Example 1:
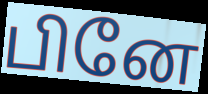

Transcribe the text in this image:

பினே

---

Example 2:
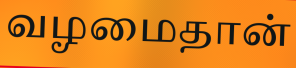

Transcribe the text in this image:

வழமைதான்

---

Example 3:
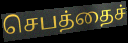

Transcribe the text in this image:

செபத்தைச்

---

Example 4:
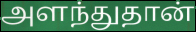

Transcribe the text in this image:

அளந்துதான்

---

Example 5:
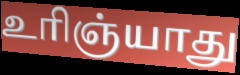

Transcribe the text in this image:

உரிஞ்யாது